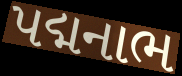
પદ્મનાભ